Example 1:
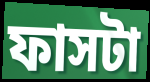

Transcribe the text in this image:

ফাসটা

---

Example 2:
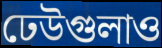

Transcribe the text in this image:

ঢেউগুলাও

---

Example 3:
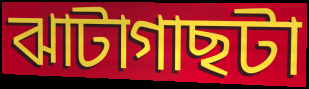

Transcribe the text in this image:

ঝাটাগাছটা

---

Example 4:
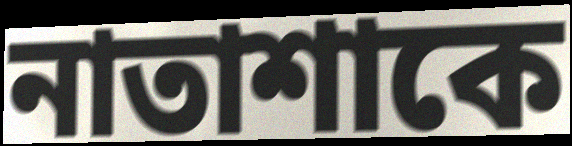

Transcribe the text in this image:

নাতাশাকে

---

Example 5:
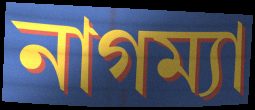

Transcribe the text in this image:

নাগম্যা